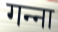
गन्‍ना